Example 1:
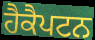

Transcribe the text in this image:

ਹੈਕੈਪਟਨ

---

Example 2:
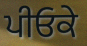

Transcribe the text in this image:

ਪੀਓਕੇ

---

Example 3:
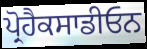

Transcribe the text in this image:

ਪ੍ਰੋਹੈਕਸਾਡੀਓਨ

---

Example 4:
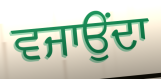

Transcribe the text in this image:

ਵਜਾਉਂਦਾ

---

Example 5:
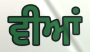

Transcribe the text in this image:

ਵੀਆਂ